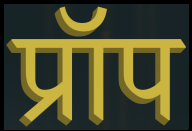
प्रॉप